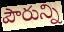
పౌరున్ని